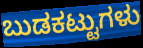
ಬುಡಕಟ್ಟುಗಳು